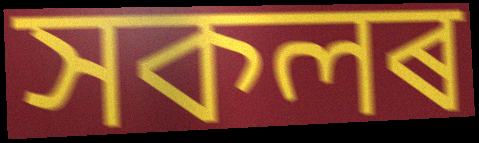
সকলৰ